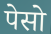
पेसो